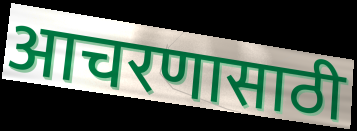
आचरणासाठी